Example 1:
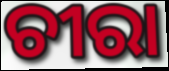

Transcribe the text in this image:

ଚୀରା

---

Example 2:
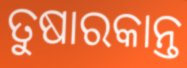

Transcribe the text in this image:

ତୁଷାରକାନ୍ତ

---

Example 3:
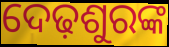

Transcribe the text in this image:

ଦେଢ଼ଶୁରଙ୍କ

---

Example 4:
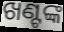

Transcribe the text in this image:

ଖଣ୍ଟଙ୍କ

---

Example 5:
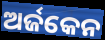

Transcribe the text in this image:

ଅର୍ଜକେନ